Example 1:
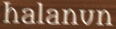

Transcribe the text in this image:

halanun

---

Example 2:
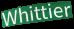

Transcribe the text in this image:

Whittier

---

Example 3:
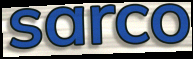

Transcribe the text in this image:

sarco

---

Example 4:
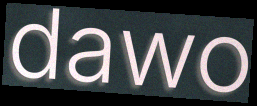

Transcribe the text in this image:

dawo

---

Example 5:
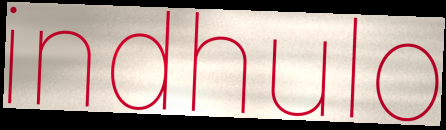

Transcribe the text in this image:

indhulo